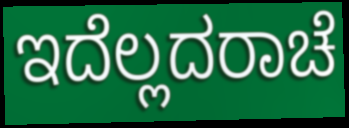
ಇದೆಲ್ಲದರಾಚೆ